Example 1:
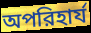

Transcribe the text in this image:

অপরিহার্য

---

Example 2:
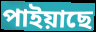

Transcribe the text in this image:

পাইয়াছে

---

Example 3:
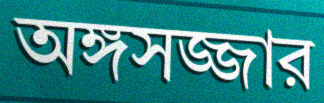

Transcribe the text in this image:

অঙ্গসজ্জার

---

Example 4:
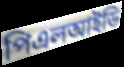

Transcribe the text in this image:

পিএলআইডি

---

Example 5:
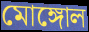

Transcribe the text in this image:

মোঙ্গোল